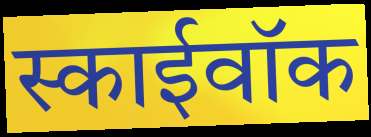
स्काईवॉक